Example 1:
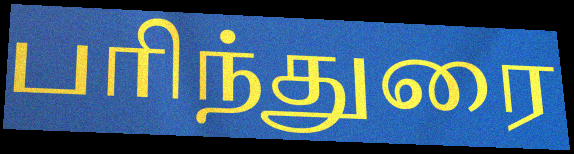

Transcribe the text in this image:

பரிந்துரை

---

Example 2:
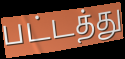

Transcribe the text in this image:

பட்டத்து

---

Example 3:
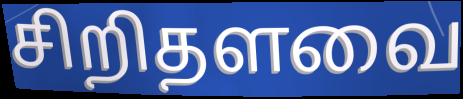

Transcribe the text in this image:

சிறிதளவை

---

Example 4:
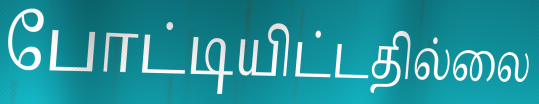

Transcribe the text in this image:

போட்டியிட்டதில்லை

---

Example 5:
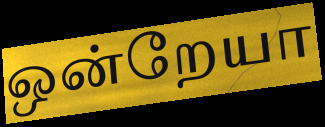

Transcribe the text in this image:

ஒன்றேயா